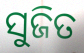
ସୁଜିତ